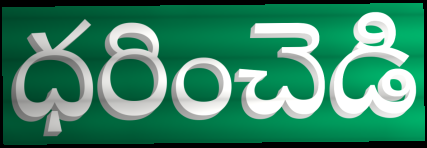
ధరించెడి